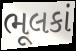
ભૂલકાં